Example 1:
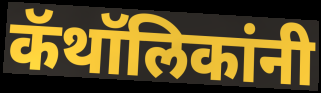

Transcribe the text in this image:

कॅथॉलिकांनी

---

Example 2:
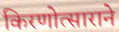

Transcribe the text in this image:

किरणोत्साराने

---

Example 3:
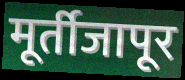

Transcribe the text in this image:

मूर्तीजापूर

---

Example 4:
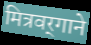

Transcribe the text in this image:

मित्रवर्गाने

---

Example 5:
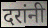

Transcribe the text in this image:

दरांनी